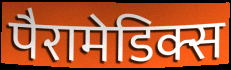
पैरामेडिक्स